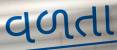
વળતા